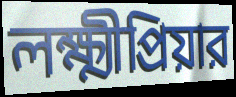
লক্ষ্মীপ্রিয়ার